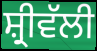
ਸ਼੍ਰੀਵੱਲੀ